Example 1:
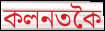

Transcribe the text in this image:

কলনতকৈ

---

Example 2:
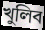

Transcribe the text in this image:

খুলিব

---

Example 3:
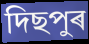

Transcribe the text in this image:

দিছপুৰ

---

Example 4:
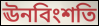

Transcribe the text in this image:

ঊনবিংশতি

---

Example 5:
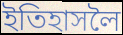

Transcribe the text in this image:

ইতিহাসলৈ